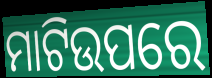
ମାଟିଉପରେ